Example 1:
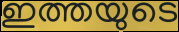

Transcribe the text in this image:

ഇത്തയുടെ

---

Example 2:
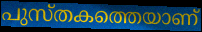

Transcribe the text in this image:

പുസ്തകത്തെയാണ്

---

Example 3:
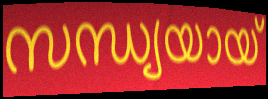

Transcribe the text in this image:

സന്ധ്യയായ്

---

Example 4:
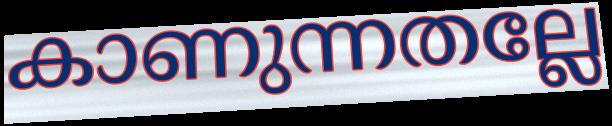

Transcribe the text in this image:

കാണുന്നതല്ലേ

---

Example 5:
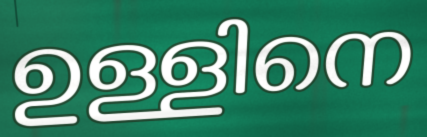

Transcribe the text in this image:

ഉള്ളിനെ